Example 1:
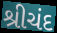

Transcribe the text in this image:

શ્રીચંદ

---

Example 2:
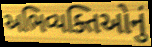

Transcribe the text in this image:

અભિવ્યક્તિઓનું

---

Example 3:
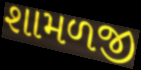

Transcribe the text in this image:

શામળજી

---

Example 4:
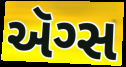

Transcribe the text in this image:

ઍગ્સ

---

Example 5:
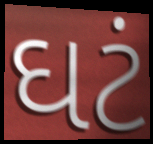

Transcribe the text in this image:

ઘટં